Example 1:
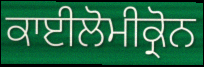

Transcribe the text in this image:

ਕਾਈਲੋਮੀਕ੍ਰੋਨ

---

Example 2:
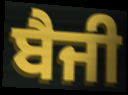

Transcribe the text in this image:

ਬੈਜੀ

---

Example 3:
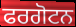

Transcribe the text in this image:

ਫਰਗੋਟਨ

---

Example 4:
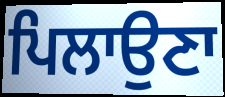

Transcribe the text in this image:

ਪਿਲਾਉਣਾ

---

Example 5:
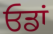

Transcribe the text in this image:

ਓਡਾਂ